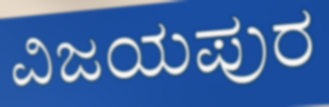
ವಿಜಯಪುರ